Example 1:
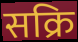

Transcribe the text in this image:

सक्रि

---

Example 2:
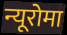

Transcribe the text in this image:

न्यूरोमा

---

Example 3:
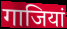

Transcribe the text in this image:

गाजियां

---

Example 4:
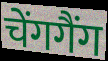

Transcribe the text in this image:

चेंगगैंग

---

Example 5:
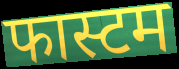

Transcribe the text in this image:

फास्टम